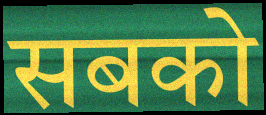
सबको